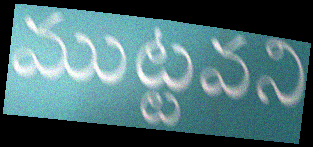
ముట్టవని